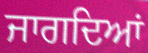
ਜਾਗਦਿਆਂ